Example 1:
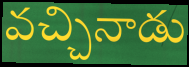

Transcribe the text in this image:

వచ్చినాడు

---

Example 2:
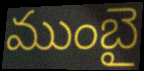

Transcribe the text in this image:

ముంబై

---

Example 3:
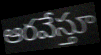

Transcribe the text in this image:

ఆరవేస్తూ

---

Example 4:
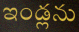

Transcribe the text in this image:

ఇండ్లను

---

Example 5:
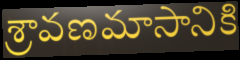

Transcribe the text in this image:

శ్రావణమాసానికి